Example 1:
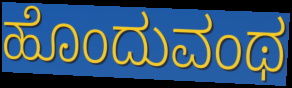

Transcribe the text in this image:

ಹೊಂದುವಂಥ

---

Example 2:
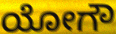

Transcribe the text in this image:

ಯೋಗೌ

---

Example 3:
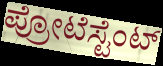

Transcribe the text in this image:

ಪ್ರೋಟೆಸ್ಟೆಂಟ್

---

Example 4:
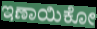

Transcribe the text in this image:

ಇಣಾಯಿಕೋ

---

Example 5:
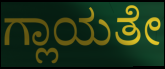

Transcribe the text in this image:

ಗ್ಲಾಯತೇ